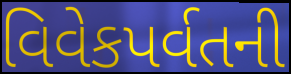
વિવેકપર્વતની